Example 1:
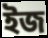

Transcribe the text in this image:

ইজ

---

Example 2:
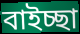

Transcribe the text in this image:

বাইচ্ছা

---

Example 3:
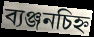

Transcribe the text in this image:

ব্যঞ্জনচিহ্ন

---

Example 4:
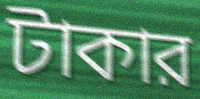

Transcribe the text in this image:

টাকার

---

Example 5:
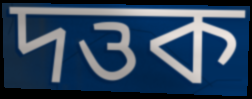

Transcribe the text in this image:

দত্তক